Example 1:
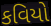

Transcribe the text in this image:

કવિયો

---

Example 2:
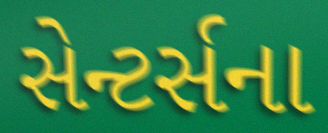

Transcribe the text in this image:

સેન્ટર્સના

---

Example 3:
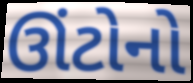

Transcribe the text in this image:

ઊંટોનો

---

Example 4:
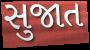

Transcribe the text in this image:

સુજાત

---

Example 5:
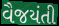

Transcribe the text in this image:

વૈજયંતી